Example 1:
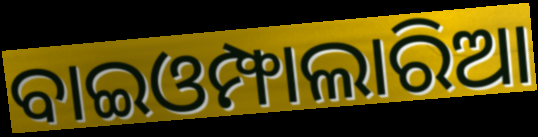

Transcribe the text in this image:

ବାଇଓମ୍ଫାଲାରିଆ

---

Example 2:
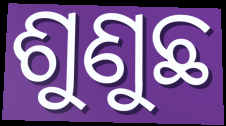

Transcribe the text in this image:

ଶୁଣୁଛ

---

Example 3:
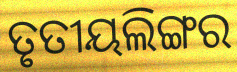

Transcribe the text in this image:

ତୃତୀୟଲିଙ୍ଗର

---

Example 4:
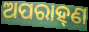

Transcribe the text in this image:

ଅପରାହ୍‍ଣ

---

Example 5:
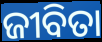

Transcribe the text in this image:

ଜୀବିତା